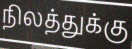
நிலத்துக்கு